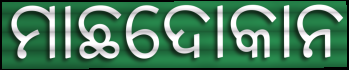
ମାଛଦୋକାନ